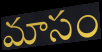
మాసం